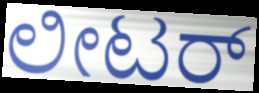
ಲೀಟರ್